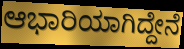
ಆಭಾರಿಯಾಗಿದ್ದೇನೆ